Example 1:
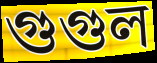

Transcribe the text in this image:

গুগুল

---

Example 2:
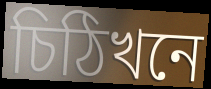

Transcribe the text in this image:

চিঠিখনে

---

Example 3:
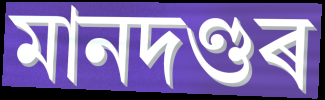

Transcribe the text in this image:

মানদণ্ডৰ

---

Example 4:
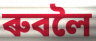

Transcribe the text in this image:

ৰুবলৈ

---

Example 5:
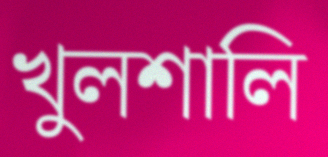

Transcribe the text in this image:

খুলশালি